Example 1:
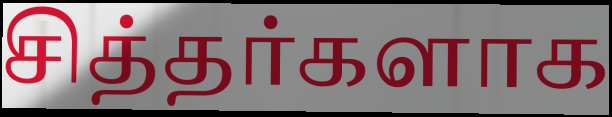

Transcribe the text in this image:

சித்தர்களாக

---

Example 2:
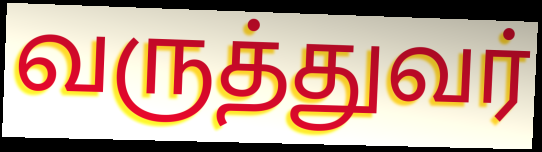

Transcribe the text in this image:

வருத்துவர்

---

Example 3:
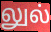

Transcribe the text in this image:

லுல்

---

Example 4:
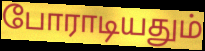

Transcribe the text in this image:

போராடியதும்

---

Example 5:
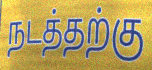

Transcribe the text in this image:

நடத்தற்கு